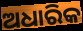
ଅଧାରିକ